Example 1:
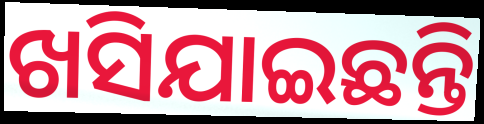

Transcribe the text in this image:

ଖସିଯାଇଛନ୍ତି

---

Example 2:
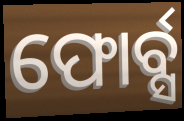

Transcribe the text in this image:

ଫୋର୍ବ୍ସ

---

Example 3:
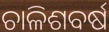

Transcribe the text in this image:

ଚାଳିଶବର୍ଷ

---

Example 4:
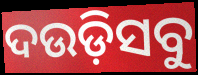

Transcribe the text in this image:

ଦଉଡ଼ିସବୁ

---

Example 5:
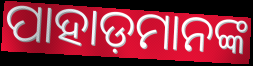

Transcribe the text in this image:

ପାହାଡ଼ମାନଙ୍କ